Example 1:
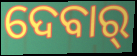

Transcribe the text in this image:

ଦେବାର୍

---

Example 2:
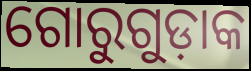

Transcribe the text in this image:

ଗୋରୁଗୁଡ଼ାକ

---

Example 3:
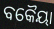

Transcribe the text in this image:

ବକୈୟା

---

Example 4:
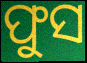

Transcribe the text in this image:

ଫୁସ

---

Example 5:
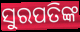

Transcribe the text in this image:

ସୁରପତିଙ୍କ